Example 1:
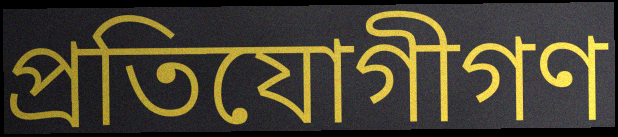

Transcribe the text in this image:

প্রতিযোগীগণ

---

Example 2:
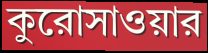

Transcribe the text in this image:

কুরোসাওয়ার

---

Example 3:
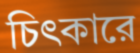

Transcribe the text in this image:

চিৎকারে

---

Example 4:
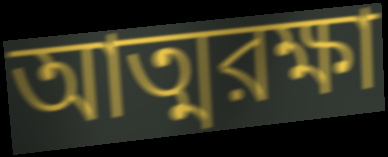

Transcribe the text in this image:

আত্মরক্ষা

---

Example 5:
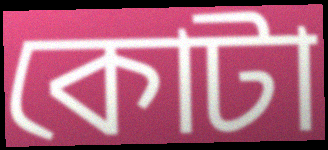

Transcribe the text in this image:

কোটা